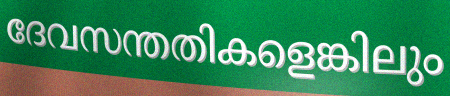
ദേവസന്തതികളെങ്കിലും